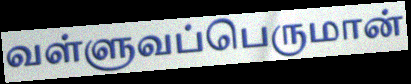
வள்ளுவப்பெருமான்